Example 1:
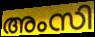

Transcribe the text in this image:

അംസി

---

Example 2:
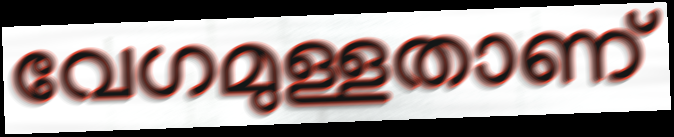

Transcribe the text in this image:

വേഗമുള്ളതാണ്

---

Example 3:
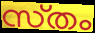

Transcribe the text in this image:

സ്‌തം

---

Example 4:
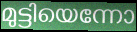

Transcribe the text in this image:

മുട്ടിയെന്നോ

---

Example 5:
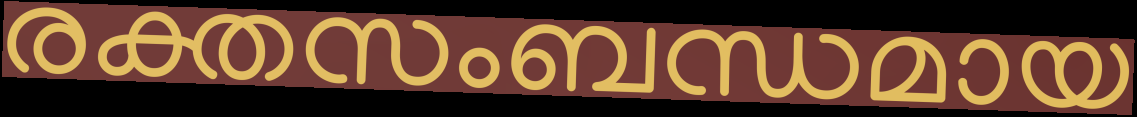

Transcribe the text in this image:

രക്തസംബന്ധമായ